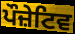
ਪੌਜ਼ੇਟਿਵ